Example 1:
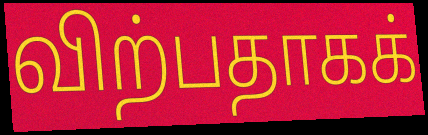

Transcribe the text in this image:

விற்பதாகக்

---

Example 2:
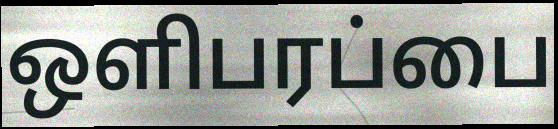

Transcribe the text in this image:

ஒளிபரப்பை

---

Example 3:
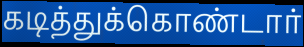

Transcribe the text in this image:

கடித்துக்கொண்டார்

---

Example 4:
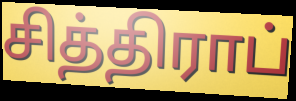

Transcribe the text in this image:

சித்திராப்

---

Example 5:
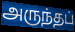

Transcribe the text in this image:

அருந்தப்